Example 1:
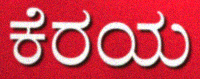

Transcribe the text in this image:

ಕೆರಯ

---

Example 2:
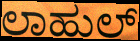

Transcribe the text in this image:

ಲಾಹುಲ್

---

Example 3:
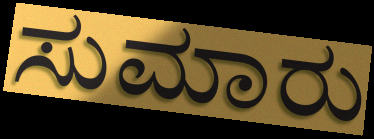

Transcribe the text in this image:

ಸುಮಾರು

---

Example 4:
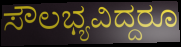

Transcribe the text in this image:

ಸೌಲಭ್ಯವಿದ್ದರೂ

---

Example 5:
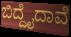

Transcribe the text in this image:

ಬಿದ್ದೈದಾವೆ